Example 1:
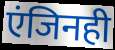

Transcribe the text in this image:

एंजिनही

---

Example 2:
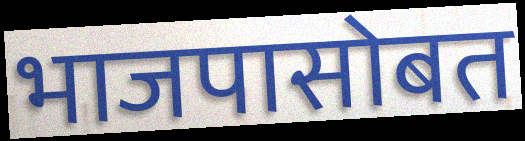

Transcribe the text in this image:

भाजपासोबत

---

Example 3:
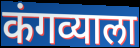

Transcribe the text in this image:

कंगव्याला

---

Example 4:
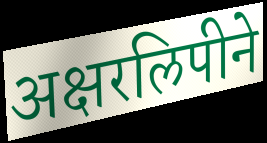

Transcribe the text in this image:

अक्षरलिपीने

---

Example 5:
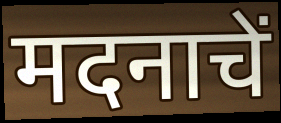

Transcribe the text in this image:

मदनाचें